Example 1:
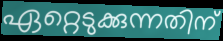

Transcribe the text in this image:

ഏറ്റെടുക്കുന്നതിന്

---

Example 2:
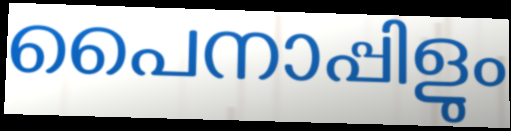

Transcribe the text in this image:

പൈനാപ്പിളും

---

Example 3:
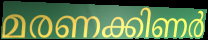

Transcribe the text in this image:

മരണക്കിണർ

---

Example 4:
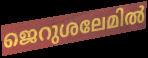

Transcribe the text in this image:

ജെറുശലേമിൽ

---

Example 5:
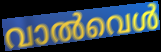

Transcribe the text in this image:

വാൽവെൾ